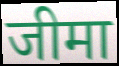
जीमा